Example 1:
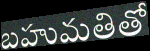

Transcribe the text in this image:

బహుమతితో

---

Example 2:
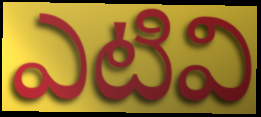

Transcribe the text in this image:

ఎటివి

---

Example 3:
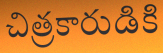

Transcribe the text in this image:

చిత్రకారుడికి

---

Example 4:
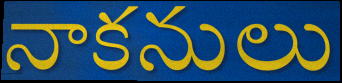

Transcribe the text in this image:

నాకనులు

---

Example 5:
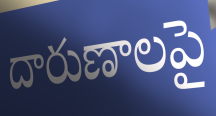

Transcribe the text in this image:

దారుణాలపై